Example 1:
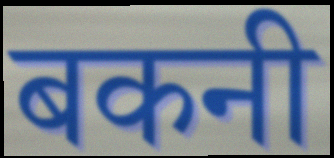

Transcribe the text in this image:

बकनी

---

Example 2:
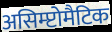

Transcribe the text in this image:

असिम्प्टोमैटिक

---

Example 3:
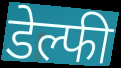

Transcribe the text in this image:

डेल्फी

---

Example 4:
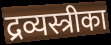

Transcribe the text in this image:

द्रव्यस्त्रीका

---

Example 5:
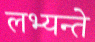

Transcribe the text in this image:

लभ्यन्ते